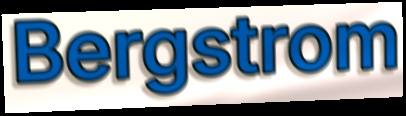
Bergstrom